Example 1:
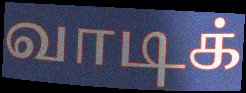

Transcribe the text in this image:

வாடிக்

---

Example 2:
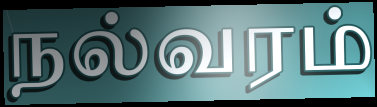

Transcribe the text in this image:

நல்வரம்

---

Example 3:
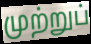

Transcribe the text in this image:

முற்றுப்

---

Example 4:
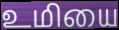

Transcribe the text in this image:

உமியை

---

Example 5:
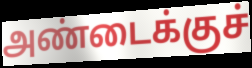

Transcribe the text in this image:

அண்டைக்குச்